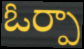
ఓర్పా